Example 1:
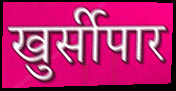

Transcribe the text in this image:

खुर्सीपार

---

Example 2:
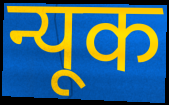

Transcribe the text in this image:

न्यूक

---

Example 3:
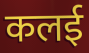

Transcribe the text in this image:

कलई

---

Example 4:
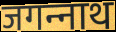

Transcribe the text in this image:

जगन्नाथ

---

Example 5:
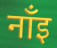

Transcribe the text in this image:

नाँइ